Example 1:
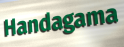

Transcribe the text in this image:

Handagama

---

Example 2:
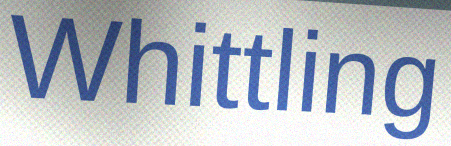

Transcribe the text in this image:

Whittling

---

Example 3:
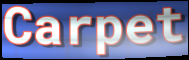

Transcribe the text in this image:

Carpet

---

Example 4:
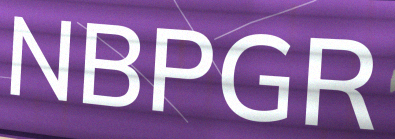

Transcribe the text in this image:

NBPGR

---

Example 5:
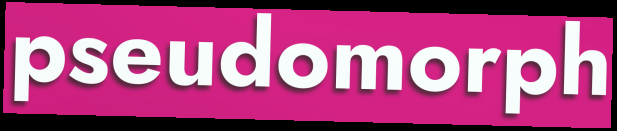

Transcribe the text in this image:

pseudomorph